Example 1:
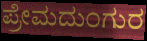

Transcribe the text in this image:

ಪ್ರೇಮದುಂಗುರ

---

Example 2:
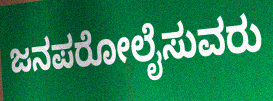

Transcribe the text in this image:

ಜನಪರೋಲೈಸುವರು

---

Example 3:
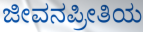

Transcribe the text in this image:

ಜೀವನಪ್ರೀತಿಯ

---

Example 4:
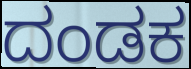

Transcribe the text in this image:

ದಂಡಕ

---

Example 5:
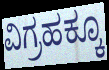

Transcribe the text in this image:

ವಿಗ್ರಹಕ್ಕೂ